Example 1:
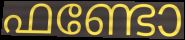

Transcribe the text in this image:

ഫണ്ടോ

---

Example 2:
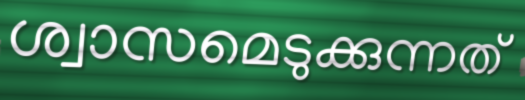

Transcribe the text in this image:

ശ്വാസമെടുക്കുന്നത്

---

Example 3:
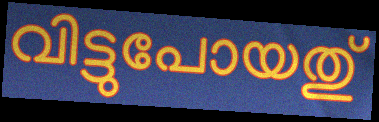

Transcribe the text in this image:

വിട്ടുപോയതു്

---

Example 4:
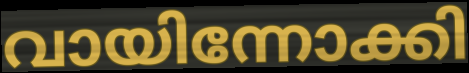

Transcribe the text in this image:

വായിന്നോക്കി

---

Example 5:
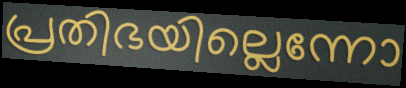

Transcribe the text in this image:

പ്രതിഭയില്ലെന്നോ